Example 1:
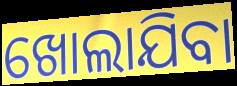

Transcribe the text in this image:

ଖୋଲାଯିବା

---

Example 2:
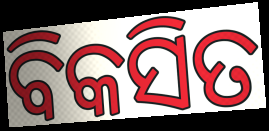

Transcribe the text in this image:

ବିକସିତ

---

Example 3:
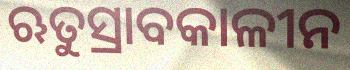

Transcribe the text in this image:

ଋତୁସ୍ରାବକାଳୀନ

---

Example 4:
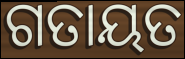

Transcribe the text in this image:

ଗତାୟତ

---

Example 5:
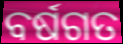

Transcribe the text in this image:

ବର୍ଷଗତ